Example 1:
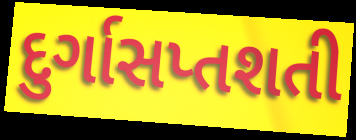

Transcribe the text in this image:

દુર્ગાસપ્તશતી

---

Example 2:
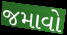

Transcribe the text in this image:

જમાવો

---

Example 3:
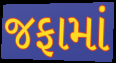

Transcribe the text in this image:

જફામાં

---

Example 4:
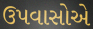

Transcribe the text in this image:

ઉપવાસોએ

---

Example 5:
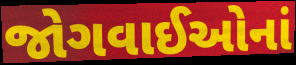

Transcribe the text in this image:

જોગવાઈઓનાં